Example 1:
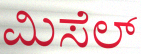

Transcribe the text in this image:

ಮಿಸೆಲ್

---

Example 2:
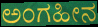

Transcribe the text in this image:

ಅಂಗಹೀನ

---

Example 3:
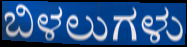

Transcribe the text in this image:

ಬಿಳಲುಗಳು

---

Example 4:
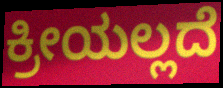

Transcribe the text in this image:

ಕ್ರೀಯಲ್ಲದೆ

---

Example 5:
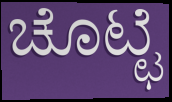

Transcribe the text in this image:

ಚೊಟ್ಟೆ